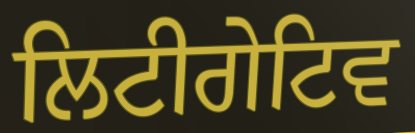
ਲਿਟੀਗੇਟਿਵ